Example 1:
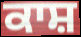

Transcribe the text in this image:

ਕਾਸ਼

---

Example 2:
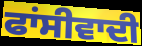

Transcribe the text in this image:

ਫਾਂਸੀਵਾਦੀ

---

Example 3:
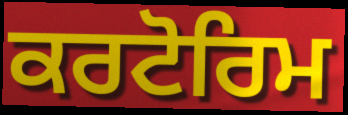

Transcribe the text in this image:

ਕਰਟੋਰਿਮ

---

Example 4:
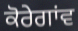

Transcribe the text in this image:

ਕੋਰੇਗਾਂਵ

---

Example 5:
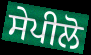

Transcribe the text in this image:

ਸੇਪੀਲੋ